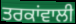
ਤਰਕਾਂਵਾਲੀ